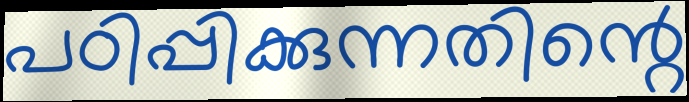
പഠിപ്പിക്കുന്നതിന്റെ